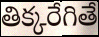
తిక్కరేగితే